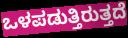
ಒಳಪಡುತ್ತಿರುತ್ತದೆ